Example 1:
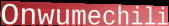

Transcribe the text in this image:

Onwumechili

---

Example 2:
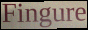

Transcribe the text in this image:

Fingure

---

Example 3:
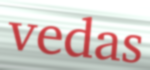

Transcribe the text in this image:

vedas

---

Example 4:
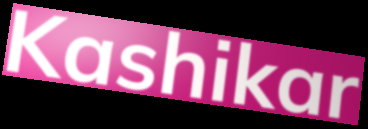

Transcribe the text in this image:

Kashikar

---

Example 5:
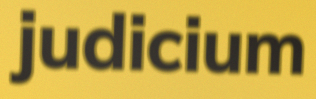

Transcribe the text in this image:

judicium